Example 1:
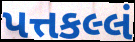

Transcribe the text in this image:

પત્તકલ્લં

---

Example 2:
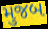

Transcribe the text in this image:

મુજબ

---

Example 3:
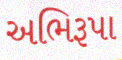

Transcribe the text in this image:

અભિરૂપા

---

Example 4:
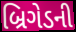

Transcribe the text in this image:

બ્રિગેડની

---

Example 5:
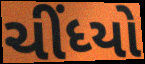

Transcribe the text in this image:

ચીંધ્યો